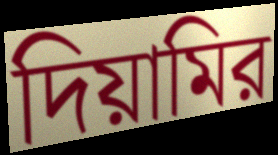
দিয়ামির